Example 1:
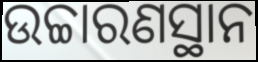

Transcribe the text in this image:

ଉଚ୍ଚାରଣସ୍ଥାନ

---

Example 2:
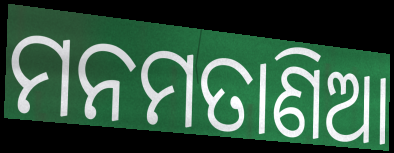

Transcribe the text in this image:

ମନମତାଣିଆ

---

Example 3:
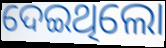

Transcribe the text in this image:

ଦେଇଥିଲୋ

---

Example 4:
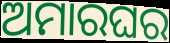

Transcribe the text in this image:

ଅମାରଘର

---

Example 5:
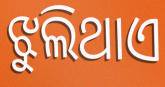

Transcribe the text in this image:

ଝୁଲିଥାଏ